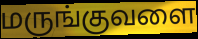
மருங்குவளை